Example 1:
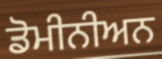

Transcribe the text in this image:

ਡੋਮੀਨੀਅਨ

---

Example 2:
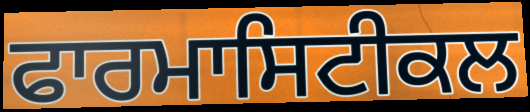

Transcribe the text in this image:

ਫਾਰਮਾਸਿਟੀਕਲ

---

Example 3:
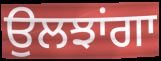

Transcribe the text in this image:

ਉਲਝਾਂਗਾ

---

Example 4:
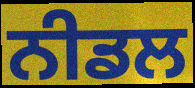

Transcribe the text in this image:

ਨੀਡਲ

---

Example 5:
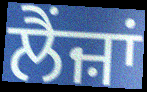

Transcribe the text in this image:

ਲੈਂਜ਼ਾਂ